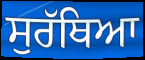
ਸੁਰੱਥਿਆ